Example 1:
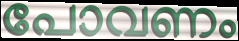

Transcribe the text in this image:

പോവണം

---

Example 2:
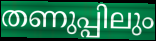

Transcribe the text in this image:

തണുപ്പിലും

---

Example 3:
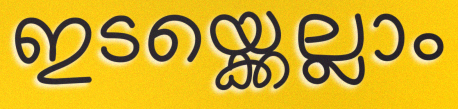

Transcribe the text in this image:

ഇടയ്ക്കെല്ലാം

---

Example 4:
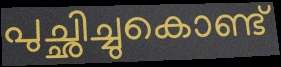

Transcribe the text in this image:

പുച്ഛിച്ചുകൊണ്ട്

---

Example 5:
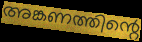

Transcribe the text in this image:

അങ്കണത്തിന്റെ